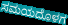
ಸಮಯದೊಳಗ